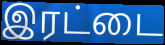
இரட்டை